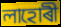
লাহোৰী